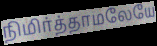
நிமிர்த்தாமலேயே